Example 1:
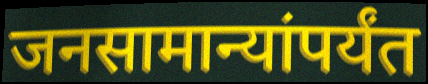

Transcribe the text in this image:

जनसामान्यांपर्यंत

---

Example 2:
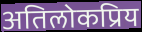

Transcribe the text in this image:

अतिलोकप्रिय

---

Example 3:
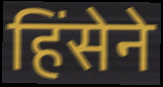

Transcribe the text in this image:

हिंसेने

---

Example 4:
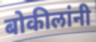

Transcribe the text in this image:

बोकीलांनी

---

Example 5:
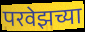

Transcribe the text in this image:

परवेझच्या